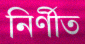
নির্ণীত